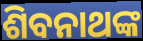
ଶିବନାଥଙ୍କ